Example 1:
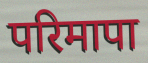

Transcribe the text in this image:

परिमापा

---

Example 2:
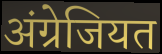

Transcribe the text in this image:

अंग्रेजियत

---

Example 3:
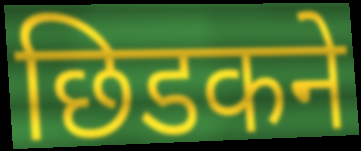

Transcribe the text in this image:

छिडकने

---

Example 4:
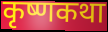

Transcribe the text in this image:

कृष्णकथा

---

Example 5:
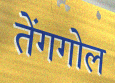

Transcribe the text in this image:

तेंगगोल